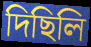
দিছিলি